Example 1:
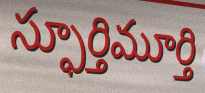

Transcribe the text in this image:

స్ఫూర్తిమూర్తి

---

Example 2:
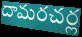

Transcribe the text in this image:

దామరచర్ల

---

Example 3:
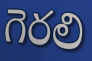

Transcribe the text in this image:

గెరలి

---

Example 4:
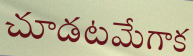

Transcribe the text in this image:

చూడటమేగాక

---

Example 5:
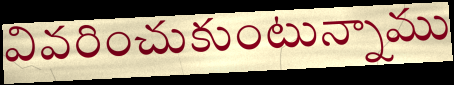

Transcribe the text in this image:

వివరించుకుంటున్నాము